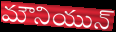
మౌనియున్